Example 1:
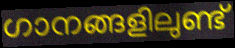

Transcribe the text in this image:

ഗാനങ്ങളിലുണ്ട്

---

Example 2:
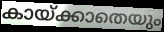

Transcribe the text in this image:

കായ്ക്കാതെയും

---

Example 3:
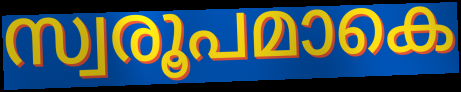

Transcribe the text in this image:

സ്വരൂപമാകെ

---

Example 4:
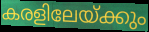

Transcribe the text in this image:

കരളിലേയ്ക്കും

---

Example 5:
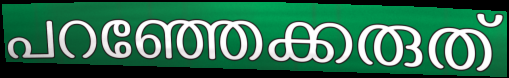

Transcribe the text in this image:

പറഞ്ഞേക്കരുത്